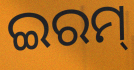
ଇରମ୍